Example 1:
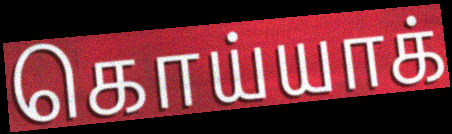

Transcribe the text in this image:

கொய்யாக்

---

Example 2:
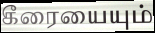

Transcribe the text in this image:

கீரையையும்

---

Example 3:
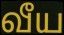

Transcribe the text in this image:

வீய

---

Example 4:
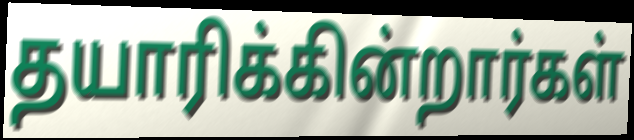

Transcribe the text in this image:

தயாரிக்கின்றார்கள்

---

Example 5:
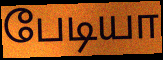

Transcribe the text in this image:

பேடியா